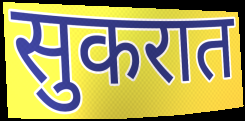
सुकरात